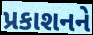
પ્રકાશનને